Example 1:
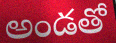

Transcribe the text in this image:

అండతో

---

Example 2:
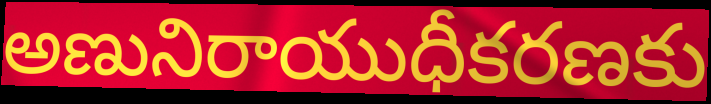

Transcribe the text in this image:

అణునిరాయుధీకరణకు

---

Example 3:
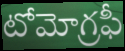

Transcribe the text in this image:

టోమోగ్రఫీ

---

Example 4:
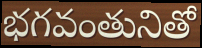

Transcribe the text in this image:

భగవంతునితో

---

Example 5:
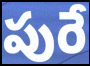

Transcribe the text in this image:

పురే